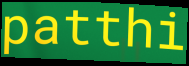
patthi